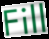
Fill